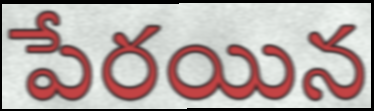
పేరయిన